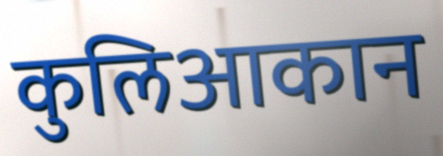
कुलिआकान